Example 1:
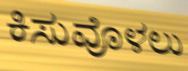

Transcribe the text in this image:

ಕಿಸುವೊಳಲು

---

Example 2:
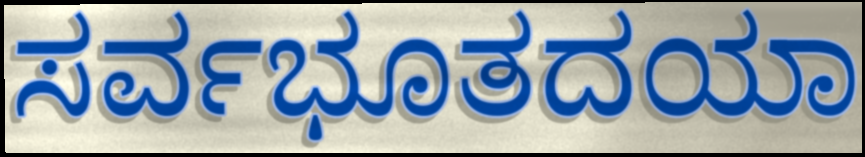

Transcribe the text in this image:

ಸರ್ವಭೂತದಯಾ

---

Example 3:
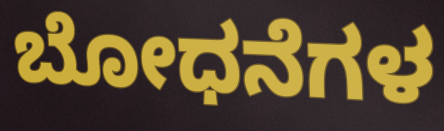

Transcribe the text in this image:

ಬೋಧನೆಗಳ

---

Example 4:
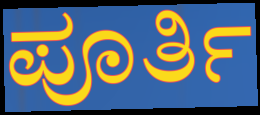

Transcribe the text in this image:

ಪೂರ್ತಿ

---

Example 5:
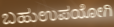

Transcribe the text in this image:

ಬಹುಉಪಯೋಗಿ